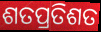
ଶତପ୍ରତିଶତ